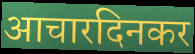
आचारदिनकर